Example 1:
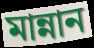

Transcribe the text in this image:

মান্নান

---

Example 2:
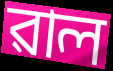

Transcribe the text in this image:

ৱাল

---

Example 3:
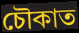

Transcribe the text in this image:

চৌকাত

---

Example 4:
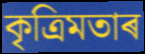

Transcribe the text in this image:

কৃত্ৰিমতাৰ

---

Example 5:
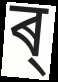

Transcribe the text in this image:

ৰ্